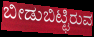
ಬೀಡುಬಿಟ್ಟಿರುವ